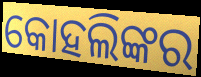
କୋହଲିଙ୍କର